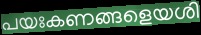
പയഃകണങ്ങളെയശി